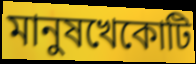
মানুষখেকোটি